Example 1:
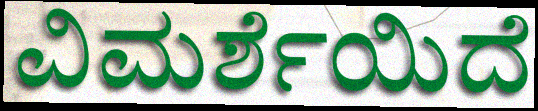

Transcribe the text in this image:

ವಿಮರ್ಶೆಯಿದೆ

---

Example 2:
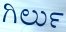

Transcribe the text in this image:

ಗಿರ್ಲು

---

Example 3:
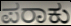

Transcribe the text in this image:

ಪರಾಕು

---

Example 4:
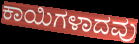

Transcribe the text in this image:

ಕಾಯಿಗಳಾದವು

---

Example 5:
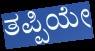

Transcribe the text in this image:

ತಪ್ಪಿಯೇ